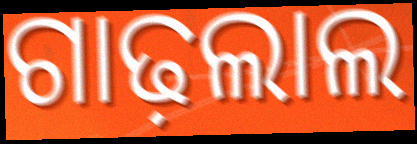
ଗାଢ଼ଲାଲ